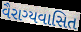
વૈરાગ્યવાસિત